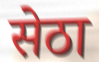
सेठा